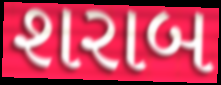
શરાબ